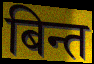
बिन्त